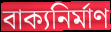
বাক্যনির্মাণ